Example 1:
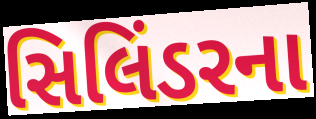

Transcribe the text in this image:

સિલિંડરના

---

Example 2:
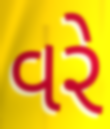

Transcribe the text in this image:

વરે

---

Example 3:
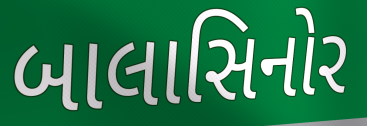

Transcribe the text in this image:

બાલાસિનોર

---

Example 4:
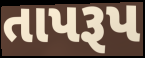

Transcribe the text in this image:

તાપરૂપ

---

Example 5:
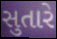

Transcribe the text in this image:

સુતારે